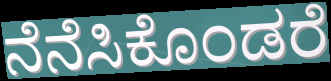
ನೆನೆಸಿಕೊಂಡರೆ